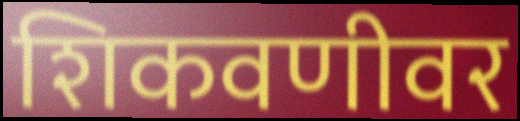
शिकवणीवर